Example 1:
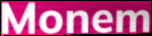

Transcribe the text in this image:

Monem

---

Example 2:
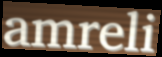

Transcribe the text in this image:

amreli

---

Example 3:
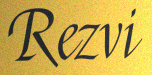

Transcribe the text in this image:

Rezvi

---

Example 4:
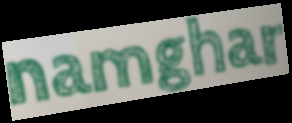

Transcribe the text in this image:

namghar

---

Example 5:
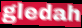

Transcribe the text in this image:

gledah